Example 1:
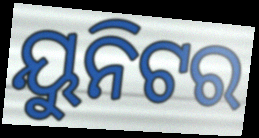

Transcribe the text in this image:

ୟୁନିଟର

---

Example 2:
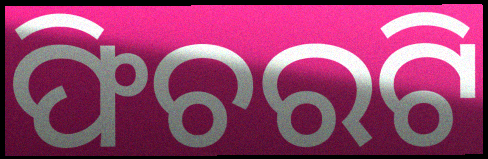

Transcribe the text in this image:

ଫିଚରଟି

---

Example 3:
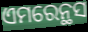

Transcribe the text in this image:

ଏମରେନ୍ଥସ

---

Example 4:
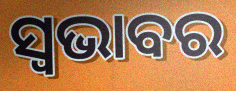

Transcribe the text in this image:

ସ୍ୱଭାବର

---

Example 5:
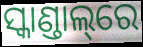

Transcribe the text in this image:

ସ୍କାଣ୍ଡାଲ୍‌ରେ